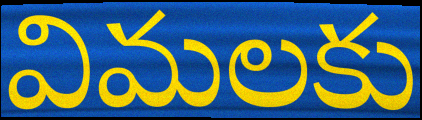
విమలకు